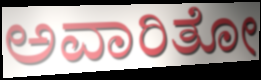
ಅವಾರಿತೋ